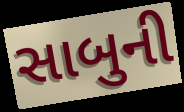
સાબુની